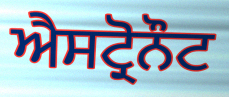
ਐਸਟ੍ਰੋਨੌਟ